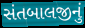
સંતબાલજીનું